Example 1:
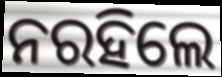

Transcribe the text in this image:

ନରହିଲେ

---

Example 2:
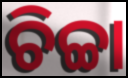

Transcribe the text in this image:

ଚିଚ୍ଚା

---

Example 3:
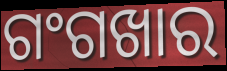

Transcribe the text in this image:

ଗଂଗଖାର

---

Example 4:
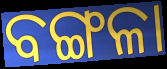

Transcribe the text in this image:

ବଙ୍ଗଳା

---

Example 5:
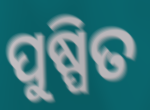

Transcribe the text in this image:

ପୁଷ୍ପିତ